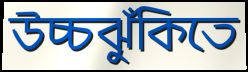
উচ্চঝুঁকিতে